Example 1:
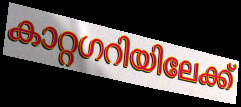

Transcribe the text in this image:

കാറ്റഗറിയിലേക്ക്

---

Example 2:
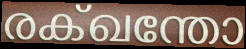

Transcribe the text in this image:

രക്ഖന്തോ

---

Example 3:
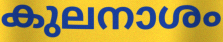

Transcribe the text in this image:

കുലനാശം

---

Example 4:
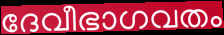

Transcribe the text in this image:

ദേവീഭാഗവതം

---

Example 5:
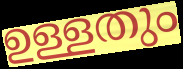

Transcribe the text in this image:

ഉള്ളതും